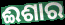
ଈଶାର